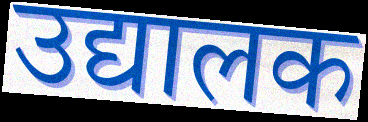
उद्यालक